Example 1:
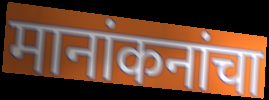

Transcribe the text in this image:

मानांकनांचा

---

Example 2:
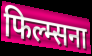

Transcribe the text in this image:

फिल्म्सना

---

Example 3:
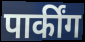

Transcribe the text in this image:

पार्कींग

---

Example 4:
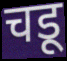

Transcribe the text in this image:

चडू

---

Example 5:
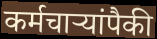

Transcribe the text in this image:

कर्मचाऱ्यांपैकी